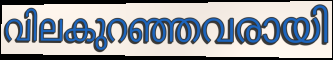
വിലകുറഞ്ഞവരായി